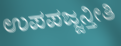
ಉಪಪಜ್ಜನ್ತೀತಿ